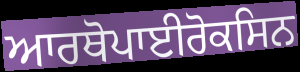
ਆਰਥੋਪਾਈਰੋਕਸਿਨ